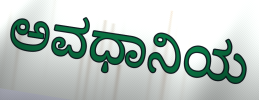
ಅವಧಾನಿಯ